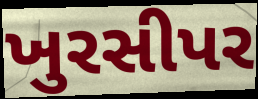
ખુરસીપર